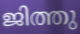
ജിത്തു